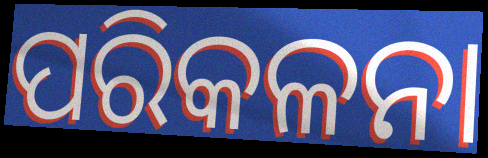
ପରିକଳନା